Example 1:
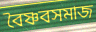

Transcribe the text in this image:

বৈষ্ণবসমাজ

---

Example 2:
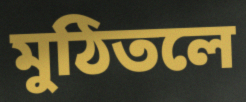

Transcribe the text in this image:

মুঠিতলে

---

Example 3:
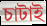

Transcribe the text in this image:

চাটাই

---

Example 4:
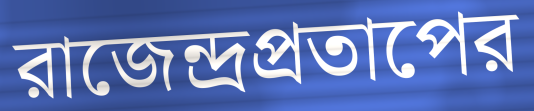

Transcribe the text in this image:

রাজেন্দ্রপ্রতাপের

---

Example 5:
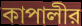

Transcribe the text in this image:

কাপালীর